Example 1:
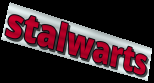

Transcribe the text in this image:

stalwarts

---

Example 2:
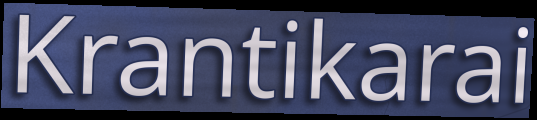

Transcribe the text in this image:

Krantikarai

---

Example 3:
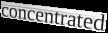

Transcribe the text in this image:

concentrated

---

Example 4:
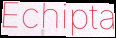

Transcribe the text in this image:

Echipta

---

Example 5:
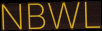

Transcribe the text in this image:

NBWL